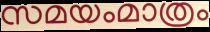
സമയംമാത്രം